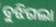
ବୁଝିଗଲା